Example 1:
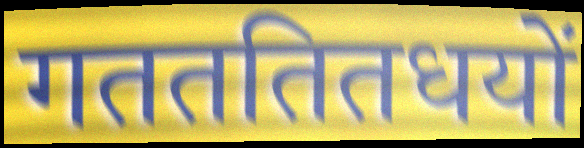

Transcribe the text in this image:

गतततितधयों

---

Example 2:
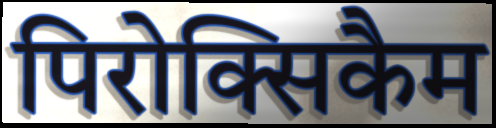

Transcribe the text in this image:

पिरोक्सिकैम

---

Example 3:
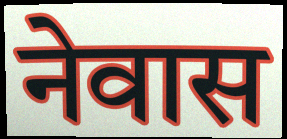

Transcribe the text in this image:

नेवास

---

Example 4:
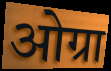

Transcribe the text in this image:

ओग्रा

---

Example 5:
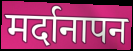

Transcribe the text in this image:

मर्दानापन